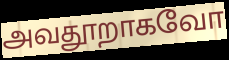
அவதூறாகவோ